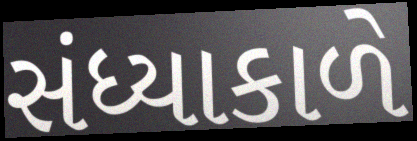
સંધ્યાકાળે